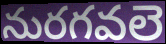
నురగవలె